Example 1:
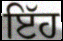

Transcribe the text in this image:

ਇੱਹ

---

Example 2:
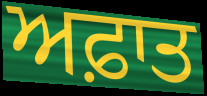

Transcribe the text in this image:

ਅਫ਼ਾਤ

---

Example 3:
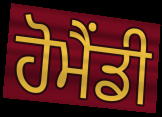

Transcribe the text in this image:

ਹੋਮੈਂਡੀ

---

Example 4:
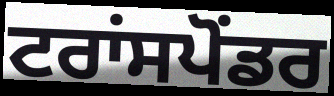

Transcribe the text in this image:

ਟਰਾਂਸਪੋਂਡਰ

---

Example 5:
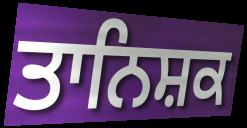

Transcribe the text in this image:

ਤਾਨਿਸ਼ਕ